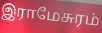
இராமேசுரம்